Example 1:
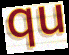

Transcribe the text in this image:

qu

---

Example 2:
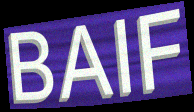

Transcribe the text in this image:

BAIF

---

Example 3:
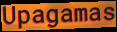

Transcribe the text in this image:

Upagamas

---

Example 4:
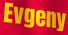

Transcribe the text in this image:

Evgeny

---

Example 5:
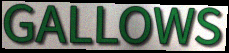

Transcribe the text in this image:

GALLOWS